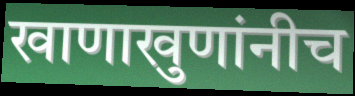
खाणाखुणांनीच